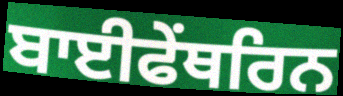
ਬਾਈਫੇਂਥਰਿਨ